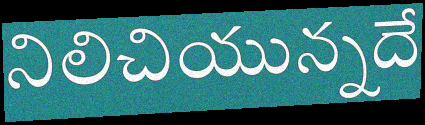
నిలిచియున్నదే